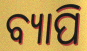
ବ୍ୟାପି